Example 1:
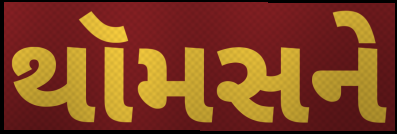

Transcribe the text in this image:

થૉમસને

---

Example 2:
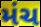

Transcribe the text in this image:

મંચ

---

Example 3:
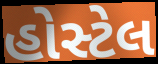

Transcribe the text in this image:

હોસ્ટેલ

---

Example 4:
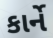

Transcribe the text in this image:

કાર્ને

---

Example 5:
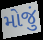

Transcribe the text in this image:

મોજું